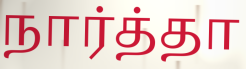
நார்த்தா